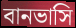
বানভাসি